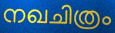
നഖചിത്രം